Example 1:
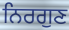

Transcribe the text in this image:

ਨਿਰਗੁਣ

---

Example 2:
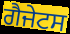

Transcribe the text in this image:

ਗੈਜੇਟਸ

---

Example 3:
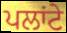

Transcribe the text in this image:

ਪਲਾਂਟੇ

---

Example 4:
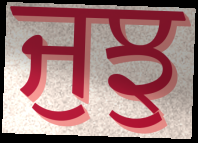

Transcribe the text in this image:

ਜੁਝੁ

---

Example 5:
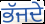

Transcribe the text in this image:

ਭੱਜਦੇ